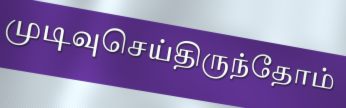
முடிவுசெய்திருந்தோம்